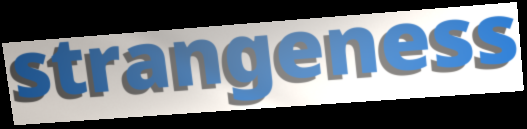
strangeness